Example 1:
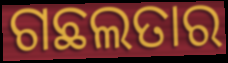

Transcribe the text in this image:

ଗଛଲତାର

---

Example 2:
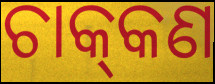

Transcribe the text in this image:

ଚାକ୍‌କଣ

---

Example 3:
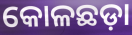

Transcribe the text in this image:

କୋଳଛଡ଼ା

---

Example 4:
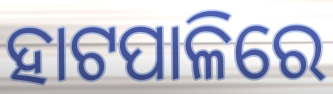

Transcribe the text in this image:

ହାଟପାଳିରେ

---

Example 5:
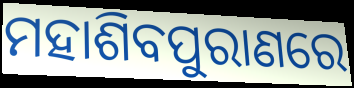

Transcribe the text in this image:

ମହାଶିବପୁରାଣରେ